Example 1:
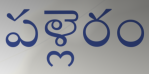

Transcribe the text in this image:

పళ్లెరం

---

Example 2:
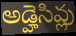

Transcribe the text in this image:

అడ్హెసివ్లు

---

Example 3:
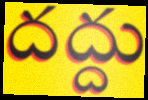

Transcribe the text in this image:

దద్దు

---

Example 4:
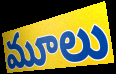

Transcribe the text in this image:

మూలు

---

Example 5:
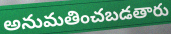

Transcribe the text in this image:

అనుమతించబడతారు